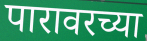
पारावरच्या